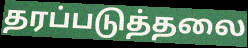
தரப்படுத்தலை